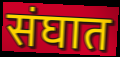
संघात